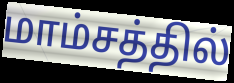
மாம்சத்தில்